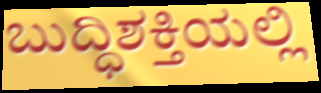
ಬುದ್ಧಿಶಕ್ತಿಯಲ್ಲಿ